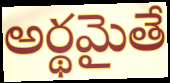
అర్థమైతే